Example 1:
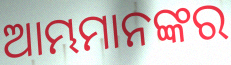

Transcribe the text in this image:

ଆମ୍ଭମାନଙ୍କର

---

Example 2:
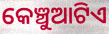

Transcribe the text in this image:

କେଞ୍ଚୁଆଟିଏ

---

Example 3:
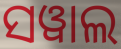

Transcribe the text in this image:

ସୱାଲ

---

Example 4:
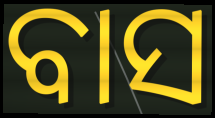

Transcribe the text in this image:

ବାସ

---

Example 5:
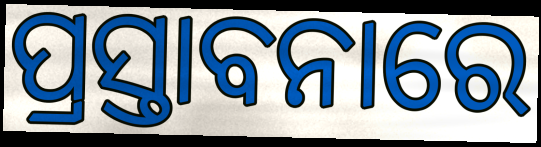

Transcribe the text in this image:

ପ୍ରସ୍ତାବନାରେ